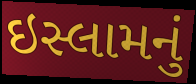
ઇસ્લામનું